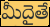
మీదైతే